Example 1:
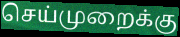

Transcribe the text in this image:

செய்முறைக்கு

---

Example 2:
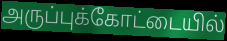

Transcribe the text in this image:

அருப்புக்கோட்டையில்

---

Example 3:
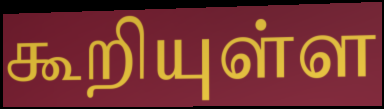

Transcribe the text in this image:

கூறியுள்ள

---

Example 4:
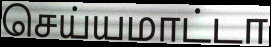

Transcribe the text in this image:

செய்யமாட்டா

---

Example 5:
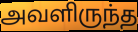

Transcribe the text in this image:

அவளிருந்த